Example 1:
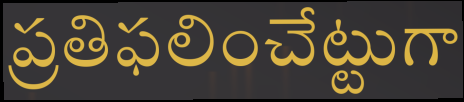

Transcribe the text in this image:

ప్రతిఫలించేట్టుగా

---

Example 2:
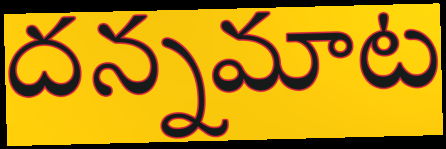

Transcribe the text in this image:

దన్నమాట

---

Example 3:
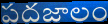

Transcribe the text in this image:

పదజాలం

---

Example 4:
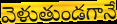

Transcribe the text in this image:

వెళుతుండగానే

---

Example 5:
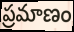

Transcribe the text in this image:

ప్రమాణం